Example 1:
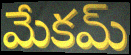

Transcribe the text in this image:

మేకమ్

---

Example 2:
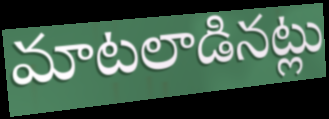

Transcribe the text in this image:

మాటలాడినట్లు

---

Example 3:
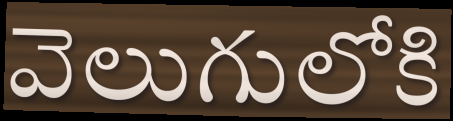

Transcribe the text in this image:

వెలుగులోకి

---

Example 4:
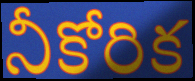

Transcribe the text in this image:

నీకోరిక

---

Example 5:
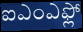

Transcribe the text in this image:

ఐఎంఎఫ్లో